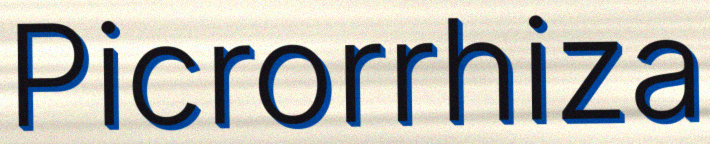
Picrorrhiza